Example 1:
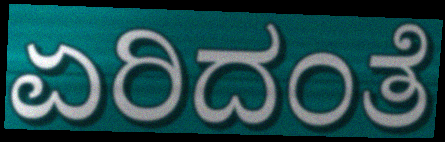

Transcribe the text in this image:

ಏರಿದಂತೆ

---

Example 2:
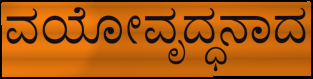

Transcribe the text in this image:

ವಯೋವೃದ್ಧನಾದ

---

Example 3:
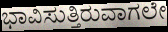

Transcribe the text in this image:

ಭಾವಿಸುತ್ತಿರುವಾಗಲೇ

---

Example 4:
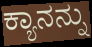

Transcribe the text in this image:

ಕ್ಯಾನನ್ನು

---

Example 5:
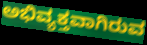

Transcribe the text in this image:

ಅಭಿವ್ಯಕ್ತವಾಗಿರುವ